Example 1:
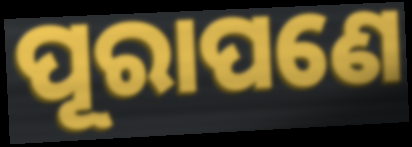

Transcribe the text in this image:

ପୂରାପଣେ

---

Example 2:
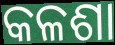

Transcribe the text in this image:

କଳଶା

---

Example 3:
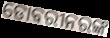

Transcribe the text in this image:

ଡୋବରୀନରଙ୍କ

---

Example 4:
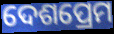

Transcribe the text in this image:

ଦେଶପ୍ରେମ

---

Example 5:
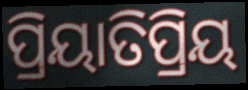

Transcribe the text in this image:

ପ୍ରିୟାତିପ୍ରିୟ